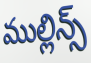
ముల్లిన్స్